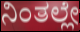
ನಿಂತಲ್ಲೇ